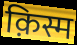
क़िस्म